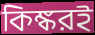
কিঙ্করই